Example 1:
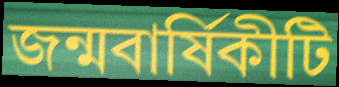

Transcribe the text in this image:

জন্মবার্ষিকীটি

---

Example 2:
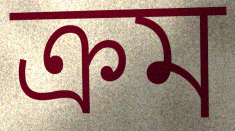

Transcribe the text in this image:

ক্রম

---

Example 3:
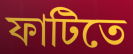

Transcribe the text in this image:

ফাটিতে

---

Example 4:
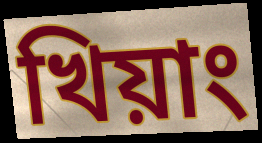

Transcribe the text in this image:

খিয়াং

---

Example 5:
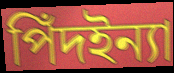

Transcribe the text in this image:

পিঁদইন্যা